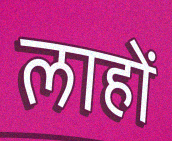
लाहों